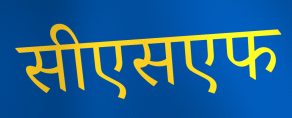
सीएसएफ